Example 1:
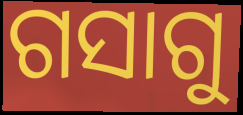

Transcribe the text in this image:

ଗସାଗୁ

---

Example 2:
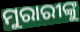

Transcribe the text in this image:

ମୁରାରୀଙ୍କୁ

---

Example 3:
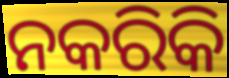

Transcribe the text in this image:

ନକରିକି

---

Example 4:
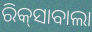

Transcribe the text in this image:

ରିକ୍‌ସାବାଲା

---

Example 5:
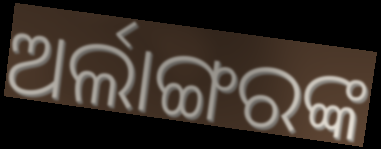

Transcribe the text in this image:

ଅର୍ଲାଙ୍ଗରଙ୍କ